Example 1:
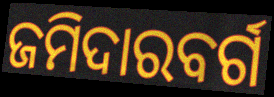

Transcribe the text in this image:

ଜମିଦାରବର୍ଗ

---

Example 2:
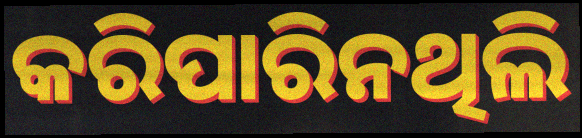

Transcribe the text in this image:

କରିପାରିନଥିଲି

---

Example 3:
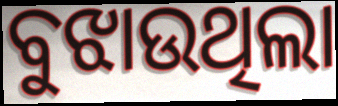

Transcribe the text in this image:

ବୁଝାଉଥିଲା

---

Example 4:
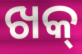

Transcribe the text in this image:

ଖକ୍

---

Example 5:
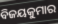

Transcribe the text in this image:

ବିଜୟକୁମାର